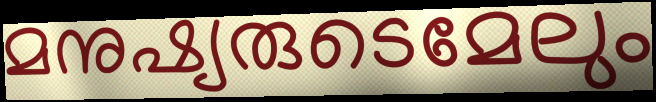
മനുഷ്യരുടെമേലും